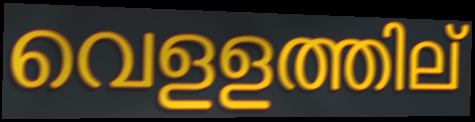
വെളളത്തില്